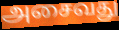
அசைவது